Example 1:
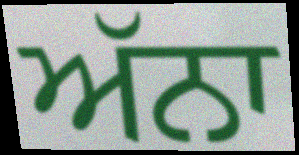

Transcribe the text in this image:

ਅੱਨਾ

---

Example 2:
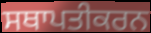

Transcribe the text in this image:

ਸਥਾਪਤੀਕਰਨ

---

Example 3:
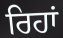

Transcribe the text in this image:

ਰਿਹਾਂ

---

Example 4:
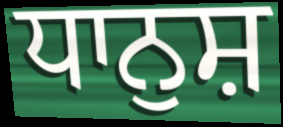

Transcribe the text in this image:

ਧਾਨੁਸ਼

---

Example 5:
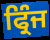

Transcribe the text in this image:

ਫ੍ਰਿੰਜ